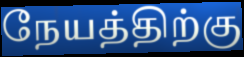
நேயத்திற்கு